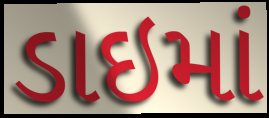
ડાઇમાં